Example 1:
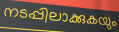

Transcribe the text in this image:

നടപ്പിലാക്കുകയും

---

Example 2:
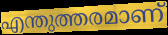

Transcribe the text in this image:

എന്തുത്തരമാണ്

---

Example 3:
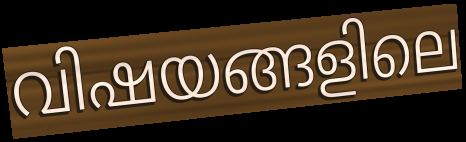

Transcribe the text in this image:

വിഷയങ്ങളിലെ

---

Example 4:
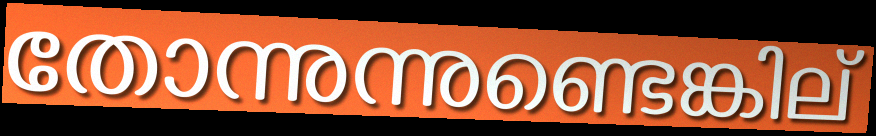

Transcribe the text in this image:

തോന്നുന്നുണ്ടെങ്കില്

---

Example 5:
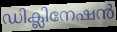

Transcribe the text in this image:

ഡിക്ലിനേഷൻ